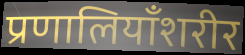
प्रणालियाँशरीर